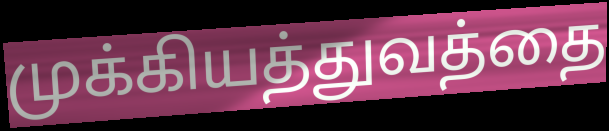
முக்கியத்துவத்தை